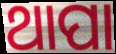
ଥାପା